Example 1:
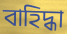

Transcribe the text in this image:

বাহিদ্ধা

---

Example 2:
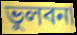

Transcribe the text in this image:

ভুলবনা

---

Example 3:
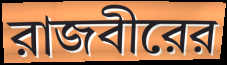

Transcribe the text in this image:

রাজবীরের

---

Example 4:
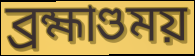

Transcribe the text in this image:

ব্রহ্মাণ্ডময়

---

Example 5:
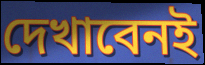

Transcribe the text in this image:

দেখাবেনই